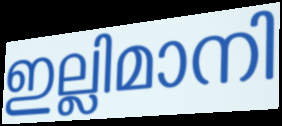
ഇല്ലിമാനി